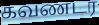
கவணடர